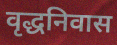
वृद्धनिवास